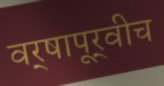
वर्षापूर्वीच